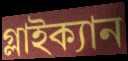
গ্লাইক্যান